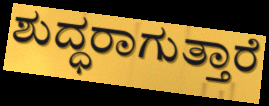
ಶುದ್ಧರಾಗುತ್ತಾರೆ